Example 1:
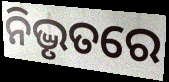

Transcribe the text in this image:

ନିଦ୍ଭୃତରେ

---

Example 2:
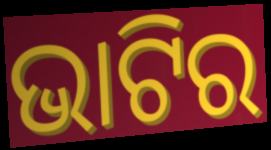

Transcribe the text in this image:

ଭାଟିର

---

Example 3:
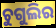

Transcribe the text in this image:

ଚୁଗୁଲିର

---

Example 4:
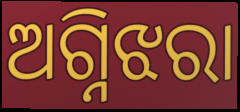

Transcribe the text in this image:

ଅଗ୍ନିଝରା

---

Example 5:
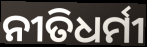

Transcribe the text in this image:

ନୀତିଧର୍ମୀ